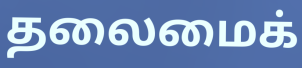
தலைமைக்